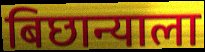
बिछान्याला